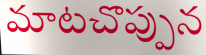
మాటచొప్పున